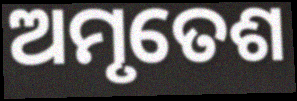
ଅମୃତେଶ